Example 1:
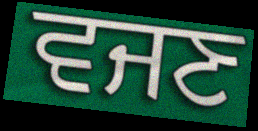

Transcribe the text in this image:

ਵਜਣ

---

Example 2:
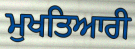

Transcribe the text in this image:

ਮੁਖਤਿਆਰੀ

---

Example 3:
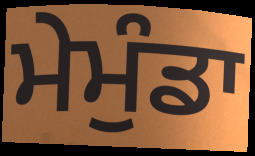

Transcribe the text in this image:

ਮੇਮੁੰਡਾ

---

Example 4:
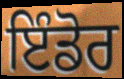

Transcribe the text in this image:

ਇੰਡੋਰ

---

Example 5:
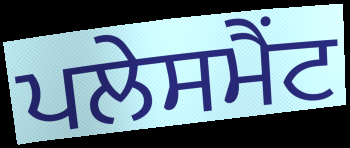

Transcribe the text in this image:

ਪਲੇਸਮੈਂਟ